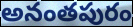
అనంతపురం